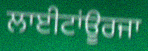
ਲਾਈਟਾਂਊਰਜਾ